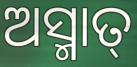
ଅସ୍ମାତ୍